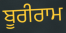
ਬੂਰੀਰਾਮ